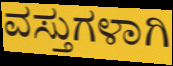
ವಸ್ತುಗಳಾಗಿ